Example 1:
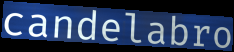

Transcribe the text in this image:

candelabro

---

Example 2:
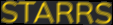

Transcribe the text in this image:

STARRS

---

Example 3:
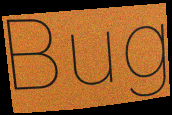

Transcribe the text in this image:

Bug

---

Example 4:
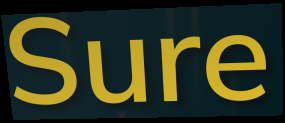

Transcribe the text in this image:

Sure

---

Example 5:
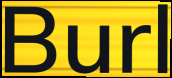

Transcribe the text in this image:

Burl